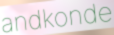
andkonde